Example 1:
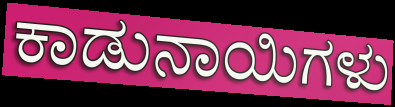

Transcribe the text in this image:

ಕಾಡುನಾಯಿಗಳು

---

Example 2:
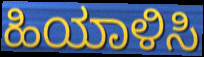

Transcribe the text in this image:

ಹಿಯಾಳಿಸಿ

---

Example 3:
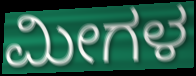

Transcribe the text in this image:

ಮೀಗಳ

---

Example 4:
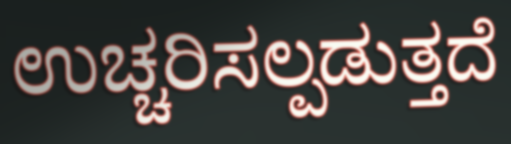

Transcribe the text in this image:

ಉಚ್ಚರಿಸಲ್ಪಡುತ್ತದೆ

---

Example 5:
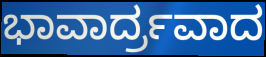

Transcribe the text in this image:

ಭಾವಾರ್ದ್ರವಾದ